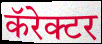
कॅरेक्टर